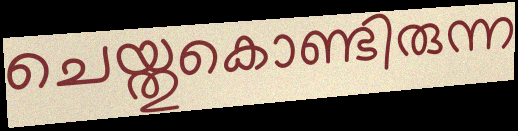
ചെയ്തുകൊണ്ടിരുന്ന